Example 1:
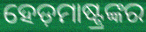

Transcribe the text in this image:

ହେଡ଼ମାଷ୍ଟ୍ରଙ୍କର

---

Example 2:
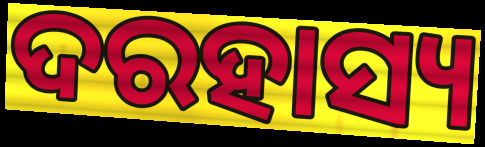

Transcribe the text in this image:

ଦରହାସ୍ୟ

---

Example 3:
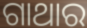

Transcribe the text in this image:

ଗାଥାର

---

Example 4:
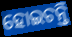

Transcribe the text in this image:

ହୋଇଚନ୍ତି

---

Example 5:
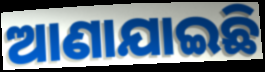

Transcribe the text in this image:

ଆଣାଯାଇଛି